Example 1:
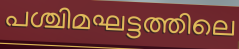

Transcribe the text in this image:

പശ്ചിമഘട്ടത്തിലെ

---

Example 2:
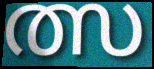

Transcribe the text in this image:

ത്സ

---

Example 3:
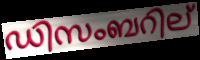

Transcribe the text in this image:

ഡിസംബറില്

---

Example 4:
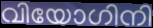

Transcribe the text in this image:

വിയോഗിനി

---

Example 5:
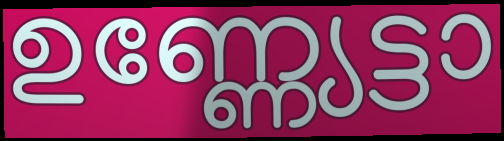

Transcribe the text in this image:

ഉണ്ണ്യേട്ടാ